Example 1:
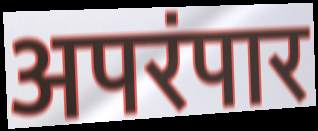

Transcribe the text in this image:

अपरंपार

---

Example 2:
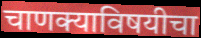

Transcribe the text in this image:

चाणक्याविषयीचा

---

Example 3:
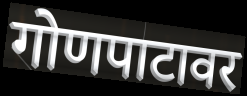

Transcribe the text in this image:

गोणपाटावर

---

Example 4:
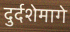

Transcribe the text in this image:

दुर्दशेमागे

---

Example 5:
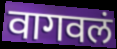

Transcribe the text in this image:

वागवलं